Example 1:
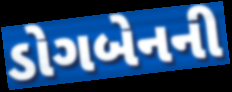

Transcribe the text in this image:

ડોગબેનની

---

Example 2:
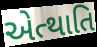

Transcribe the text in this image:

એત્થાતિ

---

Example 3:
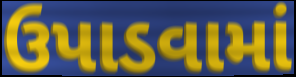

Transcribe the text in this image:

ઉપાડવામાં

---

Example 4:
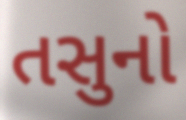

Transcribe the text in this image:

તસુનો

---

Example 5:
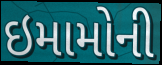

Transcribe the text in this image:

ઇમામોની